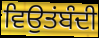
ਵਿਉਤਂਬੰਦੀ